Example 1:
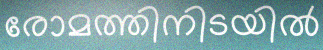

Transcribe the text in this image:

രോമത്തിനിടയിൽ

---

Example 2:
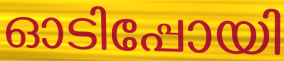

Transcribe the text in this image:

ഓടിപ്പോയി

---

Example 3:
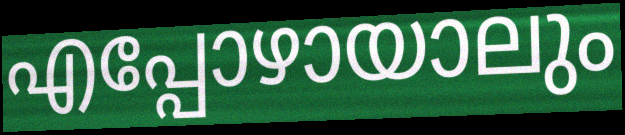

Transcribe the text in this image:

എപ്പോഴായാലും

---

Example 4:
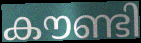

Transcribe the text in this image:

കൗണ്ടി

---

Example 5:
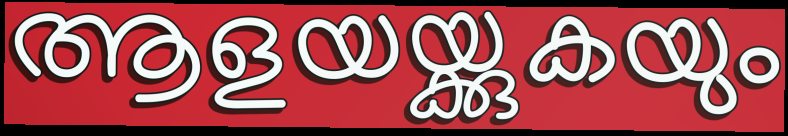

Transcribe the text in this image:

ആളയയ്ക്കുകയും